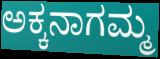
ಅಕ್ಕನಾಗಮ್ಮ